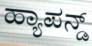
ಹ್ಯಾಪನ್ಡ್